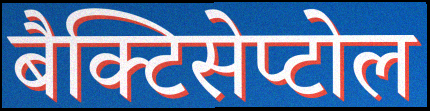
बैक्टिसेप्टोल